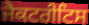
ਜੈਕਟਰੀਟਿਸ